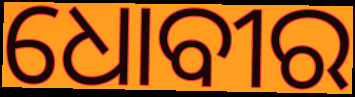
ଧୋବୀର